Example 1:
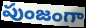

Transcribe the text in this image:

పుంజంగా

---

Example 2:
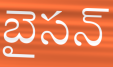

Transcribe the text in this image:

బైసన్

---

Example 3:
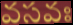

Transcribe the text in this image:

వసవః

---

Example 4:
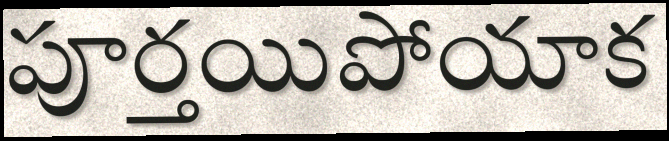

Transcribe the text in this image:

పూర్తయిపోయాక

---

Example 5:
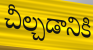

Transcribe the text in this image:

చీల్చడానికి